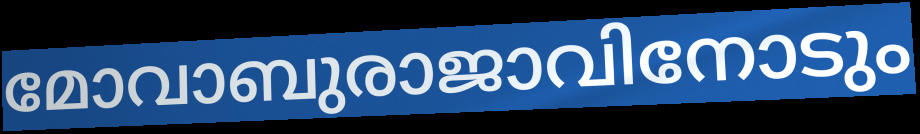
മോവാബുരാജാവിനോടും